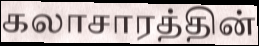
கலாசாரத்தின்